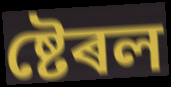
ষ্টেৰল